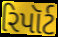
રિપૉર્ટ